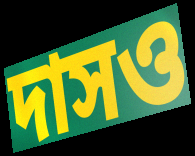
দাসও